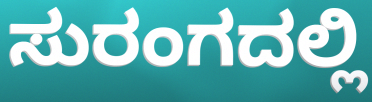
ಸುರಂಗದಲ್ಲಿ